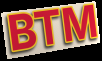
BTM